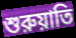
শুরুয়াতি